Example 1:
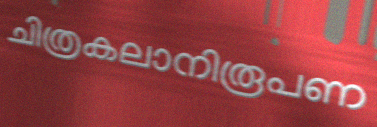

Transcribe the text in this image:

ചിത്രകലാനിരൂപണ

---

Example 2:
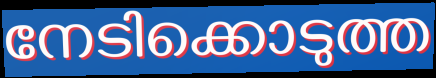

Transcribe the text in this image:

നേടിക്കൊടുത്ത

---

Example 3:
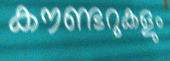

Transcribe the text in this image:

കൗണ്ടറുകളും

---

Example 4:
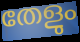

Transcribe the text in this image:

തേളും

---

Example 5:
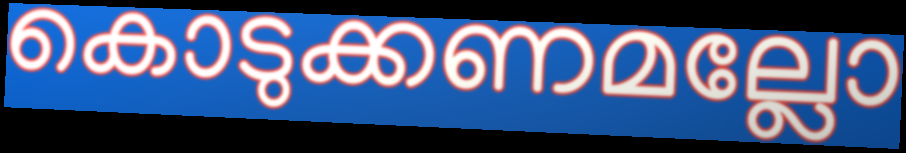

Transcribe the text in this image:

കൊടുക്കണമല്ലോ